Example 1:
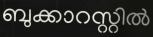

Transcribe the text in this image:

ബുക്കാറസ്റ്റിൽ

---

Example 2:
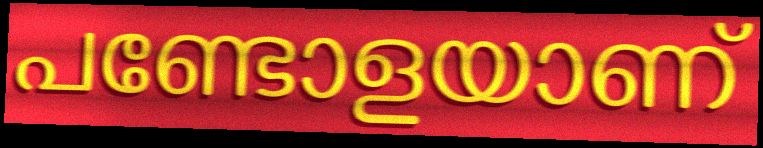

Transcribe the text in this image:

പണ്ടോളയാണ്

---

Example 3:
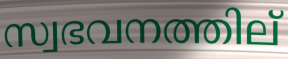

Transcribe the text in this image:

സ്വഭവനത്തില്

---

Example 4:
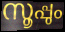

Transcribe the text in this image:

സൂപ്പും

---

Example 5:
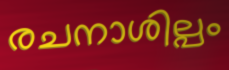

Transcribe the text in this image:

രചനാശില്പം